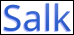
Salk